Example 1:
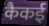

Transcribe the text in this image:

कैकई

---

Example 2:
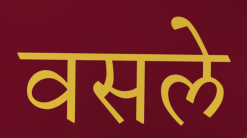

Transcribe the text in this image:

वसले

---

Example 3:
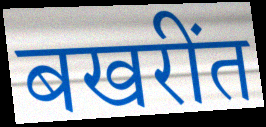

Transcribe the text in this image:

बखरींत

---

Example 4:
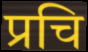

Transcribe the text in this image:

प्रचि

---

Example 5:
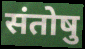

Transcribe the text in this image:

संतोषु